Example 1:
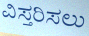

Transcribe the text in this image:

ವಿಸ್ತರಿಸಲು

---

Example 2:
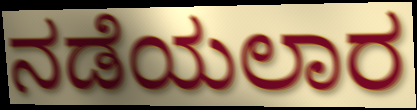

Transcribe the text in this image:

ನಡೆಯಲಾರ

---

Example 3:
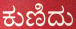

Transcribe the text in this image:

ಕುಣಿದು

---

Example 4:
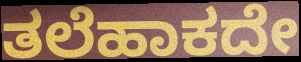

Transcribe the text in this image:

ತಲೆಹಾಕದೇ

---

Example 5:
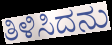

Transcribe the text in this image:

ತಿಳಿಸಿದನು